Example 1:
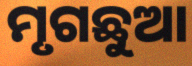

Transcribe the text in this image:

ମୃଗଛୁଆ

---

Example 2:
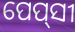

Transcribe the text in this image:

ପେପ୍‌ସୀ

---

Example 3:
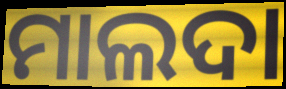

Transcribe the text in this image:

ମାଲଦା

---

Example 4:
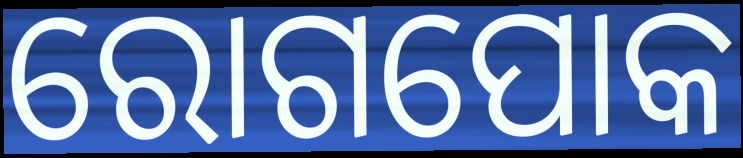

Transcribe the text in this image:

ରୋଗପୋକ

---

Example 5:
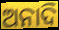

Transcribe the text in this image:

ଅନାଦି